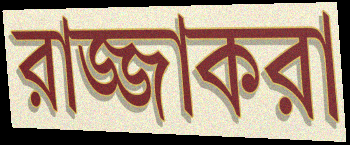
রাজ্জাকরা